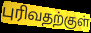
புரிவதற்குள்